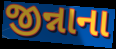
જીન્નાના